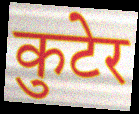
कुटेर